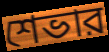
শেভার